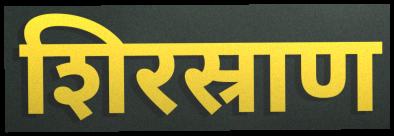
शिरस्राण